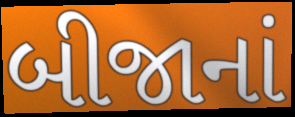
બીજાનાં